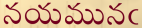
నయమునఁ